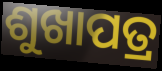
ଶୁଖାପତ୍ର